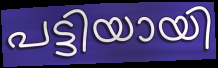
പട്ടിയായി